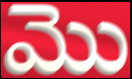
మొ